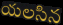
యలసిన